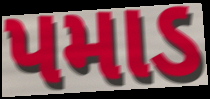
પમાડ